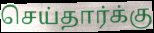
செய்தார்க்கு